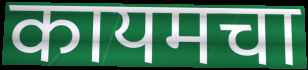
कायमचा